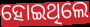
ହୋଇଥିଲେ